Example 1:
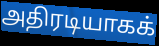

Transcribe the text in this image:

அதிரடியாகக்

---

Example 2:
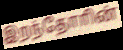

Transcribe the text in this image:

இறந்தோரின்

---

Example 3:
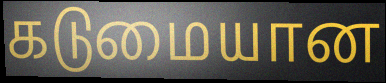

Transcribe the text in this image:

கடுமையான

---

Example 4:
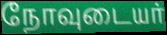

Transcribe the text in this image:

நோவுடையர்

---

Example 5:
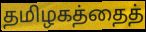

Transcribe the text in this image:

தமிழகத்தைத்